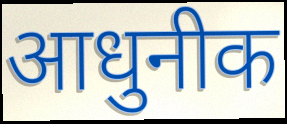
आधुनीक